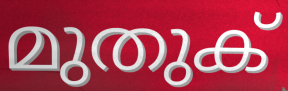
മുതുക്